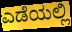
ಎಡೆಯಲ್ಲಿ